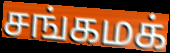
சங்கமக்